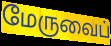
மேருவைப்